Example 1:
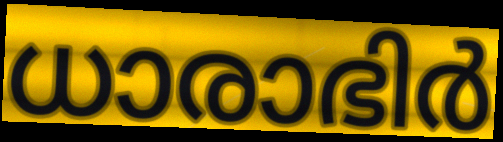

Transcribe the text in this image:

ധാരാഭിർ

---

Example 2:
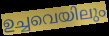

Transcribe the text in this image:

ഉച്ചവെയിലും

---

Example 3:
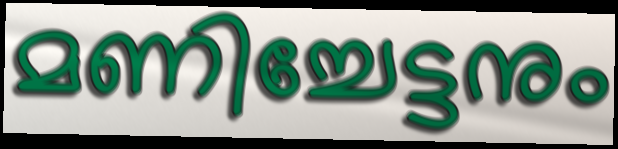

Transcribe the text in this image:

മണിച്ചേട്ടനും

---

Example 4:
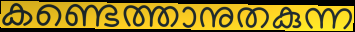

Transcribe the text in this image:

കണ്ടെത്താനുതകുന്ന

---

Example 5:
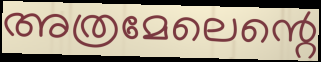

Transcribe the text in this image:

അത്രമേലെന്റെ